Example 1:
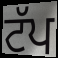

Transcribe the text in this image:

ਟੱਪ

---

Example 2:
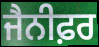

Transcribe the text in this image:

ਜੈਨੀਫ਼ਰ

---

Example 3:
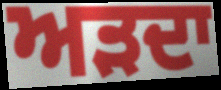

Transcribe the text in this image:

ਅੜਦਾ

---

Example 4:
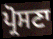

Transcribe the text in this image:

ਪ੍ਰੋਸਣਾ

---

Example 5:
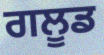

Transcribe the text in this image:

ਗਲੂਡ